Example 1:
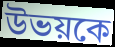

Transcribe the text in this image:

উভয়কে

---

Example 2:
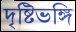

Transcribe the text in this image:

দৃষ্টিভঙ্গি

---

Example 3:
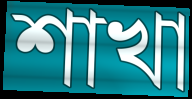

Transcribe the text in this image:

শাখা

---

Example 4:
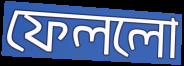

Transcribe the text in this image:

ফেললো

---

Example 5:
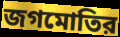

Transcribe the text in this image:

জগমোতির